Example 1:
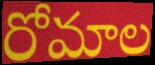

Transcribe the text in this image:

రోమాల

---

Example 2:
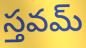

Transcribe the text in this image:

స్తవమ్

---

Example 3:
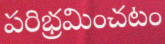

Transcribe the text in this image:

పరిభ్రమించటం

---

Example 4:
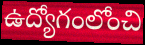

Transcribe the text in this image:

ఉద్యోగంలోంచి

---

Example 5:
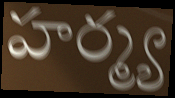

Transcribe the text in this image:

హర్మ్య